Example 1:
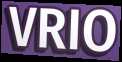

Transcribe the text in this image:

VRIO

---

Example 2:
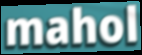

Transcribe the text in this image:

mahol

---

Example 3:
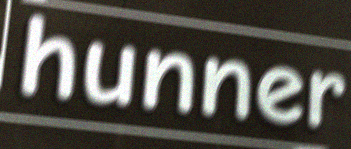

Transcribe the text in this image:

hunner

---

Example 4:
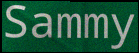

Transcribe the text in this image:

Sammy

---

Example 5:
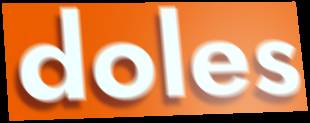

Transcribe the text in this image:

doles